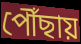
পৌঁছায়